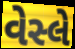
વેસ્લે